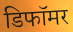
डिफॉमर